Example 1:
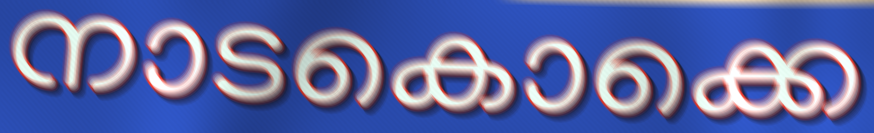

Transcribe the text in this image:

നാടകൊക്കെ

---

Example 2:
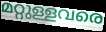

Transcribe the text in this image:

മറ്റുള്ളവരെ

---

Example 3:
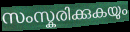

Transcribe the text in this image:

സംസ്കരിക്കുകയും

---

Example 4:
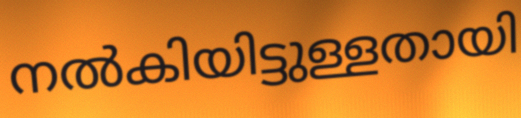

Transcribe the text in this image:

നൽകിയിട്ടുള്ളതായി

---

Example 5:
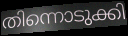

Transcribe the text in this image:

തിന്നൊടുക്കി